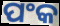
ପଂକ